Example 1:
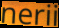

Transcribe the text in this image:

nerii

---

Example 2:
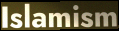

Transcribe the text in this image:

Islamism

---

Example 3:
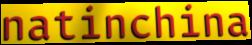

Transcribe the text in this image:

natinchina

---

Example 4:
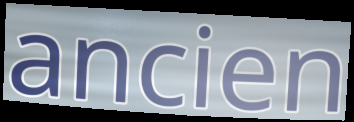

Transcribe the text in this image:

ancien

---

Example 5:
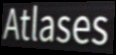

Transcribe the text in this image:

Atlases